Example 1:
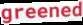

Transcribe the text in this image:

greened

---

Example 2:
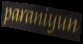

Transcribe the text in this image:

paraniyun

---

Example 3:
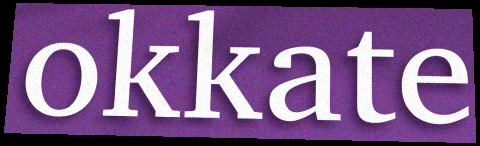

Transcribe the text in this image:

okkate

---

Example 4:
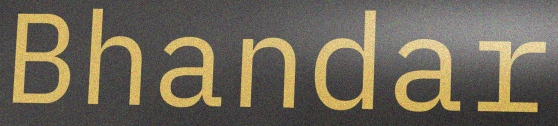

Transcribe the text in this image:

Bhandar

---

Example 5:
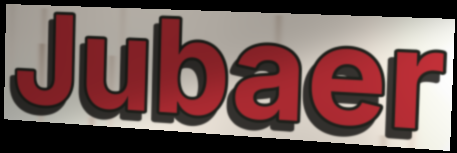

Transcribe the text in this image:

Jubaer